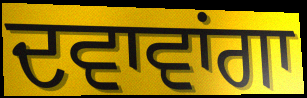
ਦਵਾਵਾਂਗਾ